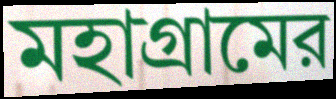
মহাগ্রামের